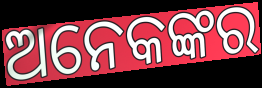
ଅନେକଙ୍କର